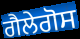
ਗੈਲੇਗੋਸ